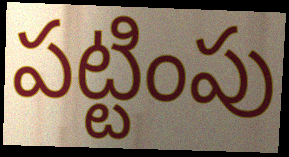
పట్టింపు